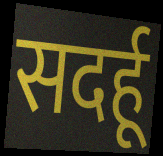
सदर्हू